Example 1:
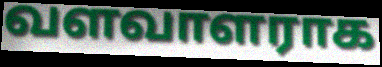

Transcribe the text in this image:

வளவாளராக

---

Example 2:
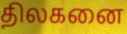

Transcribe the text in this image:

திலகனை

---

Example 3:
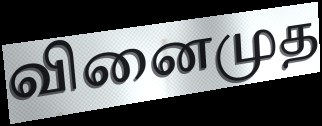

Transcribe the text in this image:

வினைமுத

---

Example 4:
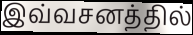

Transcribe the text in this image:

இவ்வசனத்தில்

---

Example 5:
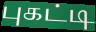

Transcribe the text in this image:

புகட்டி